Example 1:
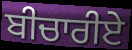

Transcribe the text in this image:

ਬੀਚਾਰੀਏ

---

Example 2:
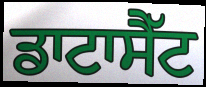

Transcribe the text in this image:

ਡਾਟਾਸੈੱਟ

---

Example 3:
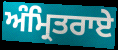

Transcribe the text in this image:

ਅੰਮ੍ਰਿਤਰਾਏ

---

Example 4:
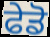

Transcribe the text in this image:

ਫੇਡੋ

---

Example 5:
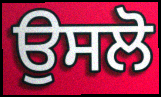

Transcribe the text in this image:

ਉਸਲੋ